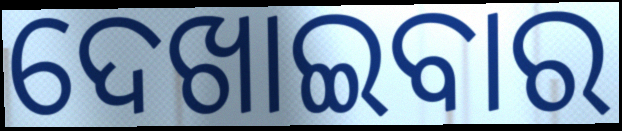
ଦେଖାଇବାର